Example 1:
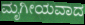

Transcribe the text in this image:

ಮೃಗೀಯವಾದ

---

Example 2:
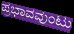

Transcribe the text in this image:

ಪ್ರಭಾವವುಂಟು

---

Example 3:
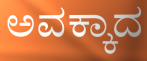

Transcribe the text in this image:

ಅವಕ್ಕಾದ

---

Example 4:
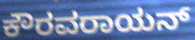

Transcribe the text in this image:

ಕೌರವರಾಯನ್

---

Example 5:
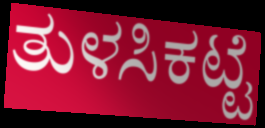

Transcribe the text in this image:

ತುಳಸಿಕಟ್ಟೆ